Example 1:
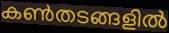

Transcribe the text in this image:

കൺതടങ്ങളിൽ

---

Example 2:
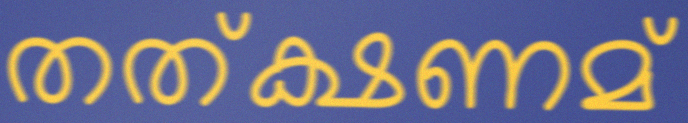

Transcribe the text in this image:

തത്ക്ഷണമ്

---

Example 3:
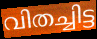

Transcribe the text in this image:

വിതച്ചിട്ട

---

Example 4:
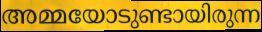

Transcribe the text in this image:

അമ്മയോടുണ്ടായിരുന്ന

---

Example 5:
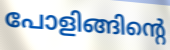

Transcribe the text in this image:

പോളിങ്ങിന്റെ